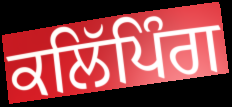
ਕਲਿੱਪਿੰਗ